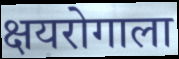
क्षयरोगाला